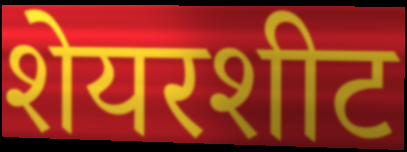
शेयरशीट